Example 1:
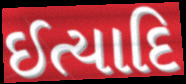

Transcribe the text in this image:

ઈત્યાદિ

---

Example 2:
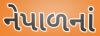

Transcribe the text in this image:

નેપાળનાં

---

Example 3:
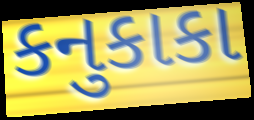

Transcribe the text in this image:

કનુકાકા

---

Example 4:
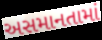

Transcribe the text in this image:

અસમાનતામાં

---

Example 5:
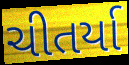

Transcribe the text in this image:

ચીતર્યા